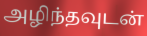
அழிந்தவுடன்